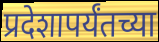
प्रदेशापर्यंतच्या